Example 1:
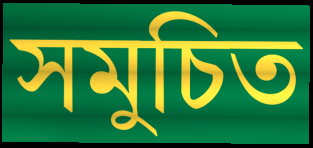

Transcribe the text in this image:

সমুচিত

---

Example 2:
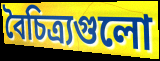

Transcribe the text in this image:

বৈচিত্র্যগুলো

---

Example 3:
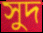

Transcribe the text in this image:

সুদ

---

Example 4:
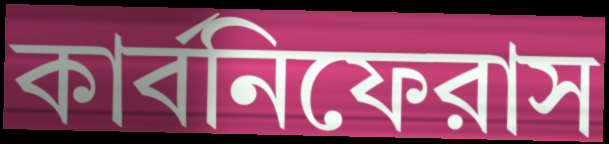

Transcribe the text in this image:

কার্বনিফেরাস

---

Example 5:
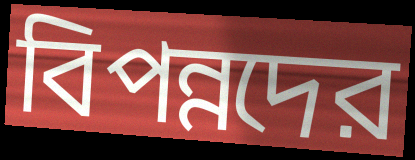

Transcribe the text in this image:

বিপন্নদের